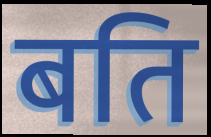
बति